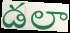
డలా